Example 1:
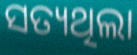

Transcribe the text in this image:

ସତ୍ୟଥିଲା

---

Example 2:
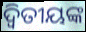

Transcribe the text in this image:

ଦ୍ଵିତୀୟଙ୍କ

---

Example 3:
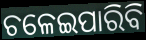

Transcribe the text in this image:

ଚଳେଇପାରିବି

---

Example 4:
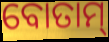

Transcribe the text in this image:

ବୋତାମ୍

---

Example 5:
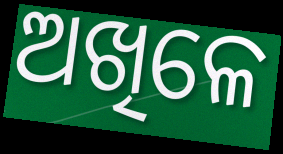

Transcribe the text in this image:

ଅଖିଳେ